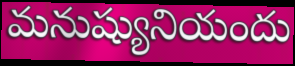
మనుష్యునియందు